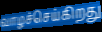
வாழச்செய்கிறது